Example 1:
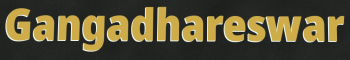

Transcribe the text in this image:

Gangadhareswar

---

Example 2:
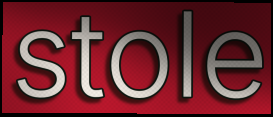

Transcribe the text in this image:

stole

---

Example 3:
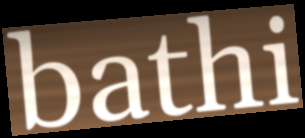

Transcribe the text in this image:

bathi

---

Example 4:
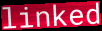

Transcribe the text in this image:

linked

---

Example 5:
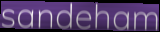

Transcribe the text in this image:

sandeham